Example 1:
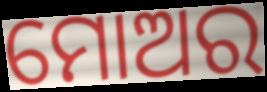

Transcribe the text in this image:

ମୋଅର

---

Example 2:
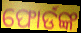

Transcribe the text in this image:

ଫୋର୍ଡଙ୍କ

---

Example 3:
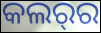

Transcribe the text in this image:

କଲର୍‌ର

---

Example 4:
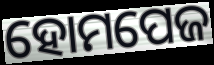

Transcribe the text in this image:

ହୋମପେଜ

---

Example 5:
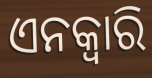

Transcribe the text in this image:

ଏନକ୍ଵାରି